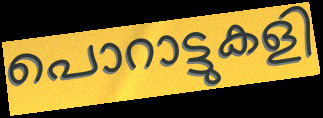
പൊറാട്ടുകളി